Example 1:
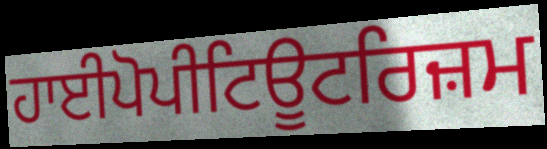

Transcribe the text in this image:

ਹਾਈਪੋਪੀਟਿਊਟਰਿਜ਼ਮ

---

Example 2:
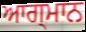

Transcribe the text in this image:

ਆਗ੍ਮਾਨ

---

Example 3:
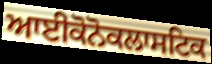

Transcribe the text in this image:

ਆਈਕੋਨੋਕਲਾਸਟਿਕ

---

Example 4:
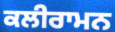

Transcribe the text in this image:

ਕਲੀਰਾਮਨ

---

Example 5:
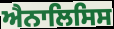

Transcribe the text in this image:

ਐਨਾਲਿਸਿਸ